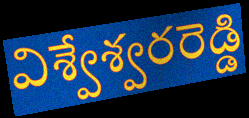
విశ్వేశ్వరరెడ్డి